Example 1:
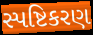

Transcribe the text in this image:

સ્પષ્ટિકરણ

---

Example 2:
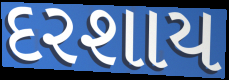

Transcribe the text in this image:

દરશાય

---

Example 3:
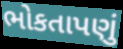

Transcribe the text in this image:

ભોકતાપણું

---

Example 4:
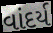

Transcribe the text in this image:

વાંદર્ય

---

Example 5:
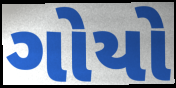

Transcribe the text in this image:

ગોયો